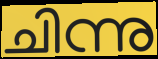
ചിന്നു